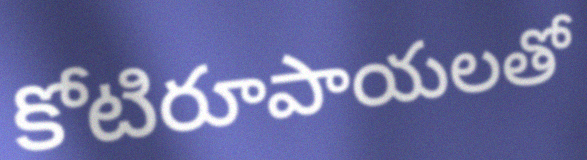
కోటిరూపాయలతో